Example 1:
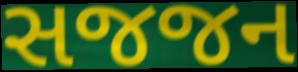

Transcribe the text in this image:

સજજન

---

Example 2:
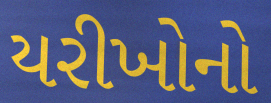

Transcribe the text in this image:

યરીખોનો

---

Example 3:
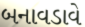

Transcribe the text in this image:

બનાવડાવે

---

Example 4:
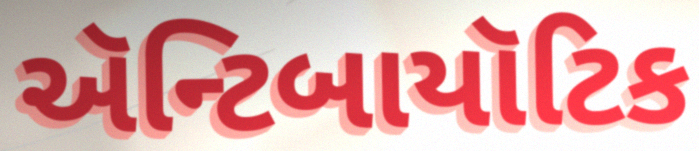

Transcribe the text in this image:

ઍન્ટિબાયૉટિક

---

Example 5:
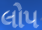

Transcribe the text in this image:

લોપ